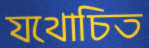
যথোচিত